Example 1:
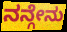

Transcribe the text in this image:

ನನ್ಗೇನು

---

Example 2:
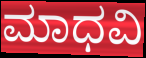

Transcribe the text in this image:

ಮಾಧವಿ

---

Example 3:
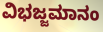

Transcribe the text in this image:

ವಿಭಜ್ಜಮಾನಂ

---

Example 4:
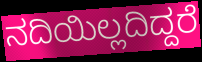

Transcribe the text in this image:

ನದಿಯಿಲ್ಲದಿದ್ದರೆ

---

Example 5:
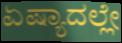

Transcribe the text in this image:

ಏಷ್ಯಾದಲ್ಲೇ